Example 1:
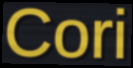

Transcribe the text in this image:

Cori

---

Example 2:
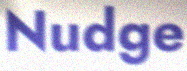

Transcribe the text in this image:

Nudge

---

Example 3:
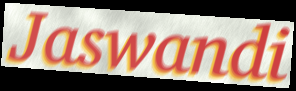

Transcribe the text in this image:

Jaswandi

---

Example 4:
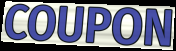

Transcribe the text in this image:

COUPON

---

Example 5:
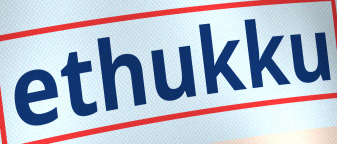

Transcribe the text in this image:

ethukku